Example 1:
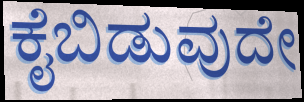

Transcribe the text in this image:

ಕೈಬಿಡುವುದೇ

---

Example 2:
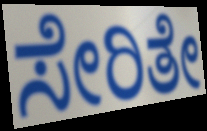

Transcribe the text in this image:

ಸೇರಿತೇ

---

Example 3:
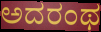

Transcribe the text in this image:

ಅದರಂಥ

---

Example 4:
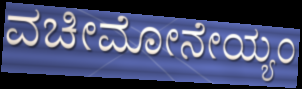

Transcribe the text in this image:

ವಚೀಮೋನೇಯ್ಯಂ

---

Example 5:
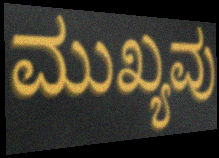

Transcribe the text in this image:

ಮುಖ್ಯವು